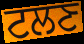
ਟਲਣ